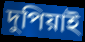
দুপিয়াই